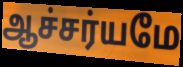
ஆச்சர்யமே